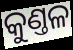
କୁଣ୍ତଳ